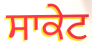
ਸਾਕੇਟ